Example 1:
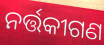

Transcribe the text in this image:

ନର୍ତ୍ତକୀଗଣ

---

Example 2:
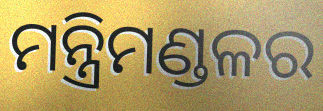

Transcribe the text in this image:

ମନ୍ତ୍ରିମଣ୍ଡଳର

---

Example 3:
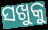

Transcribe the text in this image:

ସଖୁକୁ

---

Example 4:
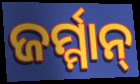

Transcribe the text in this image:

ଜର୍ମ୍ମାନ୍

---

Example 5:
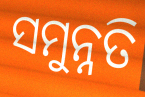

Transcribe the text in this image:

ସମୁନ୍ନତି